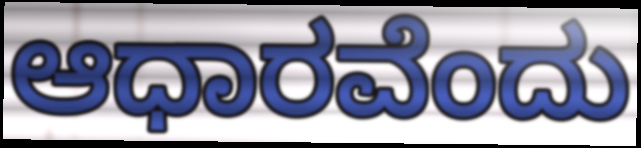
ಆಧಾರವೆಂದು